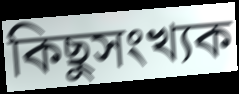
কিছুসংখ্যক